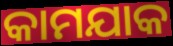
କାମଯାକ